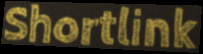
Shortlink